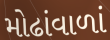
મોઢાંવાળાં